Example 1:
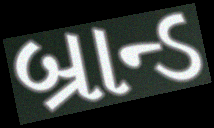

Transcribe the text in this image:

બ્રાન્ડ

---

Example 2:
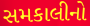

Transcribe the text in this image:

સમકાલીનો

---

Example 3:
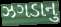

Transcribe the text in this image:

ઝગડાનુ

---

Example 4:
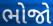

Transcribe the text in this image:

ભોજો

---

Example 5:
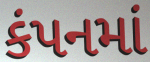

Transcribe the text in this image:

કંપનમાં